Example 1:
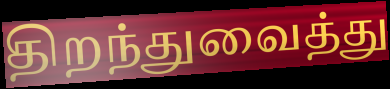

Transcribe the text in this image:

திறந்துவைத்து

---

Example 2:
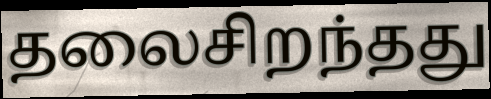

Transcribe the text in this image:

தலைசிறந்தது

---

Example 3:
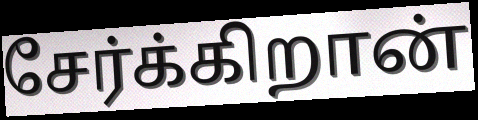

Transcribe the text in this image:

சேர்க்கிறான்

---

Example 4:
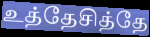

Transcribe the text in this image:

உத்தேசித்தே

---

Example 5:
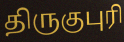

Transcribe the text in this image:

திருகுபுரி